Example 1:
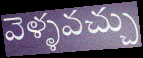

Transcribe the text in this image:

వెళ్ళవచ్చు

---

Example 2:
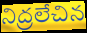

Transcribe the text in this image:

నిద్రలేచిన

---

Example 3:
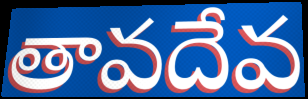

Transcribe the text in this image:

తావదేవ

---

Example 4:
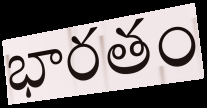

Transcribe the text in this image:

భారతం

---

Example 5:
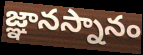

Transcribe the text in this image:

జ్ఞానస్నానం